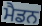
ਮੈਡਨ